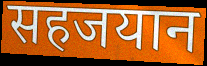
सहजयान